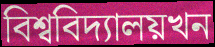
বিশ্ববিদ্যালয়খন